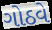
ગોઠવે